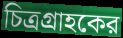
চিত্রগ্রাহকের